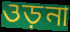
ওড়না